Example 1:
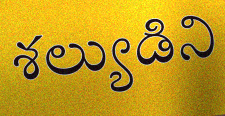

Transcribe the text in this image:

శల్యుడిని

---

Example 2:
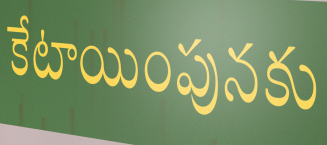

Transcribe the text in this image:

కేటాయింపునకు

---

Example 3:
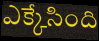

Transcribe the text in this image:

ఎక్కేసింది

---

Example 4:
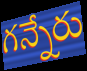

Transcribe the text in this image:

గన్నేరు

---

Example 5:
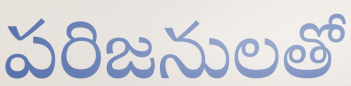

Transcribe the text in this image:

పరిజనులతో